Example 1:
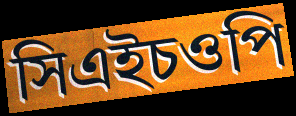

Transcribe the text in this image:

সিএইচওপি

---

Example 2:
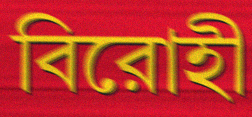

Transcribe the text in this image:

বিরোহী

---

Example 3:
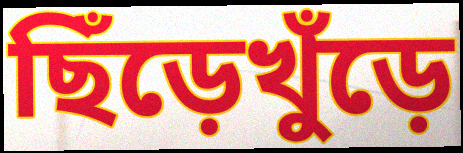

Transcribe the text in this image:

ছিঁড়েখুঁড়ে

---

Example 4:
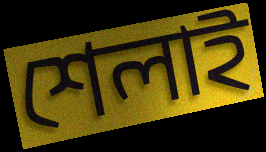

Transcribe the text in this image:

শেলাই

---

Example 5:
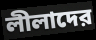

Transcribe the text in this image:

লীলাদের